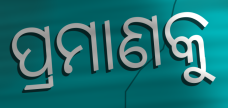
ପ୍ରମାଣକୁ